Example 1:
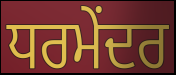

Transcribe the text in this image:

ਧਰਮੇਂਦਰ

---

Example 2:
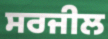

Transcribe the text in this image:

ਸਰਜੀਲ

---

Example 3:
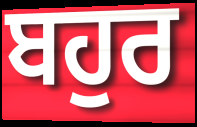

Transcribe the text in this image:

ਬਹੁਰ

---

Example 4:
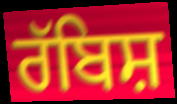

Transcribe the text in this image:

ਰੱਬਿਸ਼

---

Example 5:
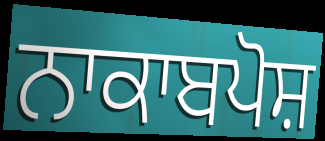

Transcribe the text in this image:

ਨਾਕਾਬਪੋਸ਼